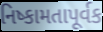
નિષ્કામતાપૂર્વક